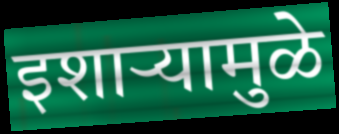
इशाऱ्यामुळे